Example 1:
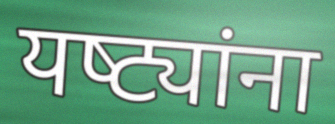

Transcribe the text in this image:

यष्ट्यांना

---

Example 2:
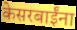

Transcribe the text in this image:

केसरबाईंना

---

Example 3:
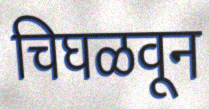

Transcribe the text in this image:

चिघळवून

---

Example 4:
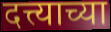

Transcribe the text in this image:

दत्त्याच्या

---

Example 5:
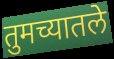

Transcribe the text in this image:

तुमच्यातले